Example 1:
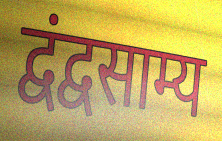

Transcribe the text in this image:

द्वंद्वसाम्य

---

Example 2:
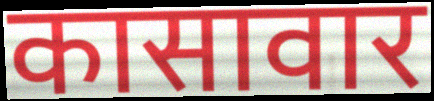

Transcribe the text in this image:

कासावार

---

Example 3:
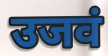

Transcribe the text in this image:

उजवं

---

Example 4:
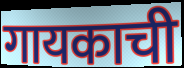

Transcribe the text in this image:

गायकाची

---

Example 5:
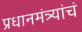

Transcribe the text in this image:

प्रधानमंत्र्यांचं